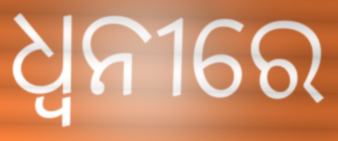
ଧ୍ଵନୀରେ